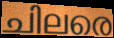
ചിലരെ